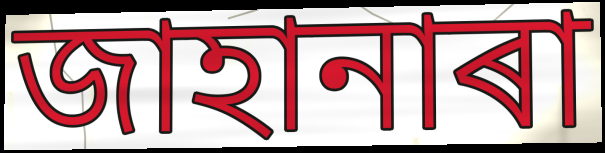
জাহানাৰা